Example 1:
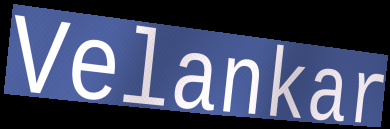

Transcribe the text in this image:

Velankar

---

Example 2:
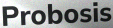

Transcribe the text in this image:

Probosis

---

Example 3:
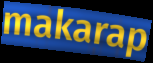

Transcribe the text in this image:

makarap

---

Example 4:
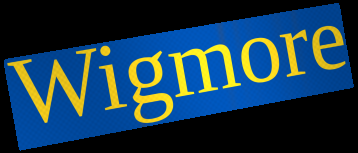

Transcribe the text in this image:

Wigmore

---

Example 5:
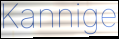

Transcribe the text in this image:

Kannige